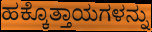
ಹಕ್ಕೊತ್ತಾಯಗಳನ್ನು